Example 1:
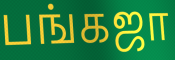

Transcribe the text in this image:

பங்கஜா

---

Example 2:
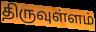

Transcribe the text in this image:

திருவுள்ளம்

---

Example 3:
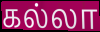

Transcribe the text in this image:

கல்லா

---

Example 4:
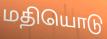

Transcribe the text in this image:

மதியொடு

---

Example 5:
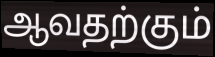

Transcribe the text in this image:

ஆவதற்கும்